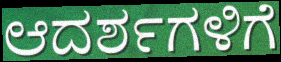
ಆದರ್ಶಗಳಿಗೆ